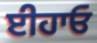
ਈਹਾਓ